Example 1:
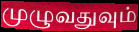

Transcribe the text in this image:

முழுவதுவும்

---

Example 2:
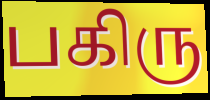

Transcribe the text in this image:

பகிரு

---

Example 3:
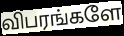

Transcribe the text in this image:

விபரங்களே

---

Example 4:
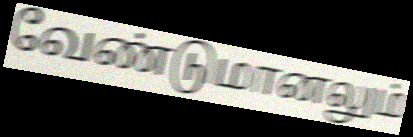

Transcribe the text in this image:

வேண்டுமானலும்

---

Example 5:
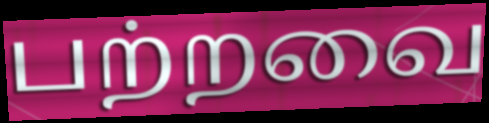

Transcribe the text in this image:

பற்றவை